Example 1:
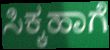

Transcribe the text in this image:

ಸಿಕ್ಕಹಾಗೆ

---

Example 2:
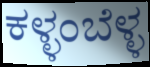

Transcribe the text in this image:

ಕಳ್ಳಂಬೆಳ್ಳ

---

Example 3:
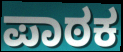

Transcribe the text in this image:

ಪಾಠಕ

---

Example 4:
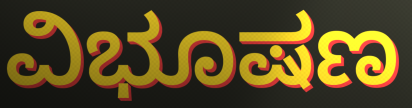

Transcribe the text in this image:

ವಿಭೂಷಣ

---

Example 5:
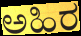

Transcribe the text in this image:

ಅಹಿರ